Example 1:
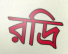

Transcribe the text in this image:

রদ্রি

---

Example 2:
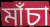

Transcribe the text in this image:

মাঁচা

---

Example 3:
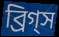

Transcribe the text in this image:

ব্রিগ্‌স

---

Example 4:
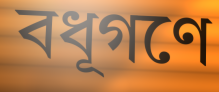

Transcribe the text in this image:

বধূগণে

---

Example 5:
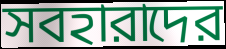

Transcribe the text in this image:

সবহারাদের